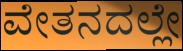
ವೇತನದಲ್ಲೇ